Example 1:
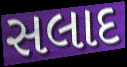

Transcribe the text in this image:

સલાદ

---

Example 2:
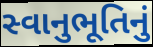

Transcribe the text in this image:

સ્વાનુભૂતિનું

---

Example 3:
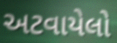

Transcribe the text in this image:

અટવાયેલો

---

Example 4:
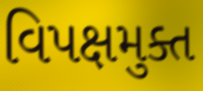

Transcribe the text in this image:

વિપક્ષમુક્ત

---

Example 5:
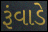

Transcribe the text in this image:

રૂંવાડે